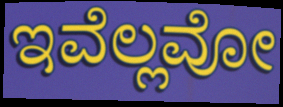
ಇವೆಲ್ಲವೋ